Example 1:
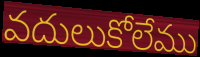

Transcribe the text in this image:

వదులుకోలేము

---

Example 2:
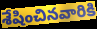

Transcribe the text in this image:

శేషించినవారికి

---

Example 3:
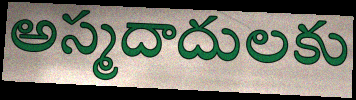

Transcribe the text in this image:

అస్మదాదులకు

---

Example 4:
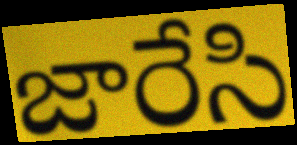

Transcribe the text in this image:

జారేసి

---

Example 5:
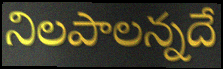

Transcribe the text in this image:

నిలపాలన్నదే